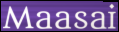
Maasai